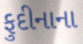
ફુદીનાના